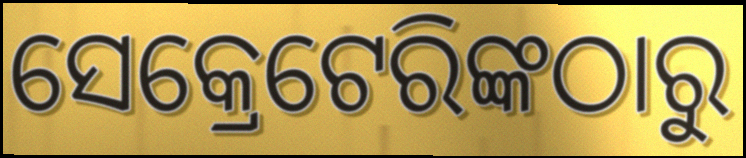
ସେକ୍ରେଟେରିଙ୍କଠାରୁ